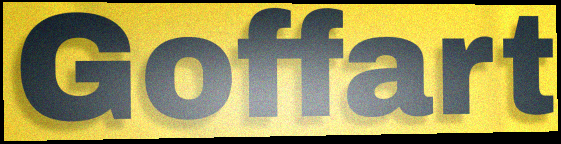
Goffart